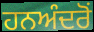
ਹਨਅੰਦਰੋਂ